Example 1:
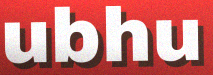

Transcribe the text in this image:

ubhu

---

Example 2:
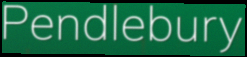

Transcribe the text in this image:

Pendlebury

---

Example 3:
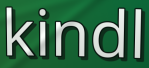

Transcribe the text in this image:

kindl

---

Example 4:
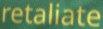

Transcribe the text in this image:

retaliate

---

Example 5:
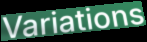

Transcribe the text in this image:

Variations